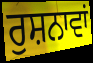
ਰੁਸ਼ਨਾਵਾਂ